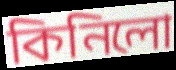
কিনিলো